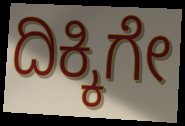
ದಿಕ್ಕಿಗೇ